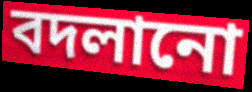
বদলানো